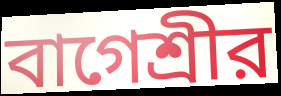
বাগেশ্রীর